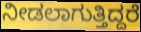
ನೀಡಲಾಗುತ್ತಿದ್ದರೆ